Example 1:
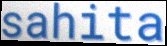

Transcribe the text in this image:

sahita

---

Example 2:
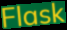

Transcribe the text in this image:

Flask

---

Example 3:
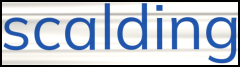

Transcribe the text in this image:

scalding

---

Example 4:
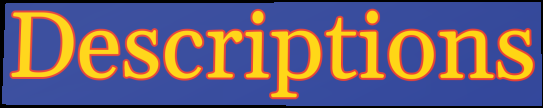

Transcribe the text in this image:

Descriptions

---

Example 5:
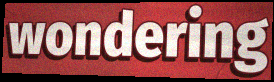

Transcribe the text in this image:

wondering